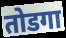
तोडगा